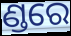
ଣ୍ଡରେ